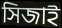
সিজাই